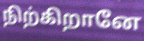
நிற்கிறானே